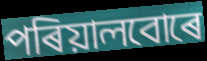
পৰিয়ালবোৰে